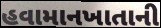
હવામાનખાતાની